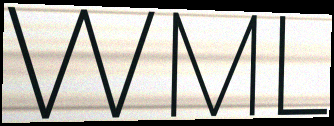
WML